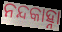
ନନ୍ଦକାହ୍ନା